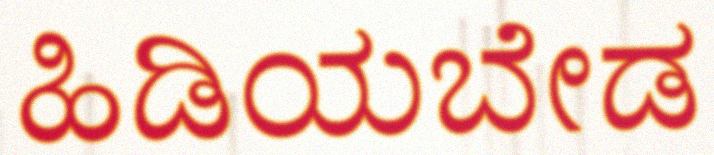
ಹಿಡಿಯಬೇಡ